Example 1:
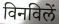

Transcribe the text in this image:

विनविलें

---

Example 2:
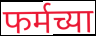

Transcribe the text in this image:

फर्मच्या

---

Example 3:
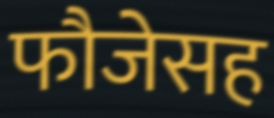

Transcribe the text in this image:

फौजेसह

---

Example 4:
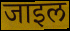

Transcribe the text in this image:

जाइल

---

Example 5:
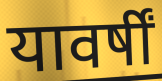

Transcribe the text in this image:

यावर्षीं